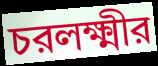
চরলক্ষ্মীর